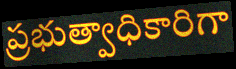
ప్రభుత్వాధికారిగా